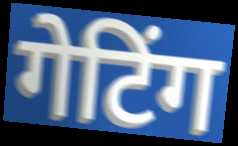
गेटिंग